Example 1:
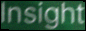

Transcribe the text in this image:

Insight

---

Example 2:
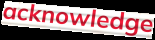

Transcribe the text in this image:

acknowledge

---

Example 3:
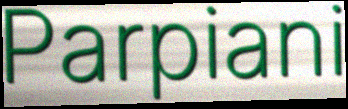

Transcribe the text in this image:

Parpiani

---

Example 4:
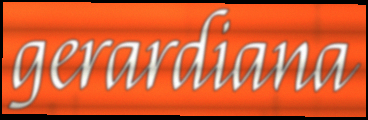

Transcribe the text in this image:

gerardiana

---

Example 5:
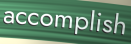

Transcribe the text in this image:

accomplish